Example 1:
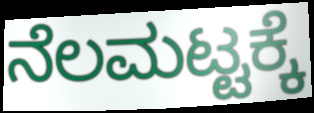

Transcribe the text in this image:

ನೆಲಮಟ್ಟಕ್ಕೆ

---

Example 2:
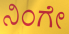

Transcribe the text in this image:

ನಿಂಗೇ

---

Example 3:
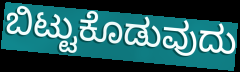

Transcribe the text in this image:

ಬಿಟ್ಟುಕೊಡುವುದು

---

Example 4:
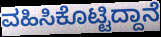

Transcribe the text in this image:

ವಹಿಸಿಕೊಟ್ಟಿದ್ದಾನೆ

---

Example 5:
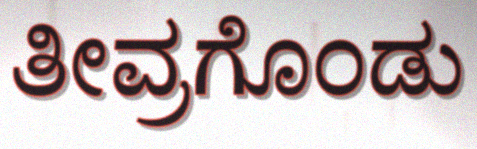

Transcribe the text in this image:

ತೀವ್ರಗೊಂಡು